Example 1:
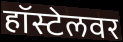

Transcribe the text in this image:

हॉस्टेलवर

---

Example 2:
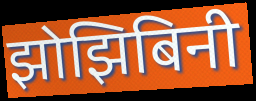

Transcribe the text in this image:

झोझिबिनी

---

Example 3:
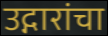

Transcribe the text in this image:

उद्गारांचा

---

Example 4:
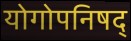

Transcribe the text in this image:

योगोपनिषद्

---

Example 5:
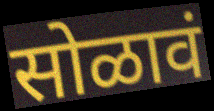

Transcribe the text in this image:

सोळावं